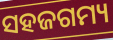
ସହଜଗମ୍ୟ